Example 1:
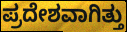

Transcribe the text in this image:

ಪ್ರದೇಶವಾಗಿತ್ತು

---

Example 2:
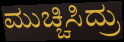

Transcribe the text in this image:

ಮುಚ್ಚಿಸಿದ್ರು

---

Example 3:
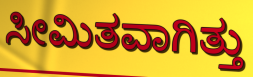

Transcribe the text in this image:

ಸೀಮಿತವಾಗಿತ್ತು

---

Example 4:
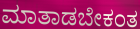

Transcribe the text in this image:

ಮಾತಾಡಬೇಕಂತ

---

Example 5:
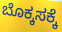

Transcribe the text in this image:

ಬೊಕ್ಕಸಕ್ಕೆ